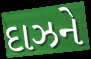
દાઝને